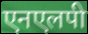
एनएलपी